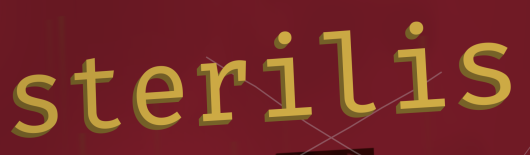
sterilis